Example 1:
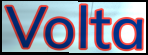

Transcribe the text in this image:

Volta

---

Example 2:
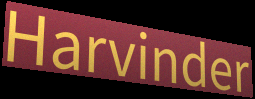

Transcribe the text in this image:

Harvinder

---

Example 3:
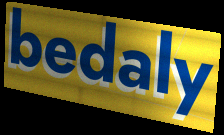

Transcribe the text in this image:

bedaly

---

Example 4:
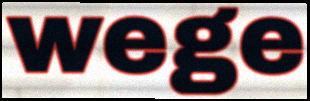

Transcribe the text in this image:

wege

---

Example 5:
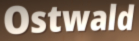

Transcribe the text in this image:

Ostwald